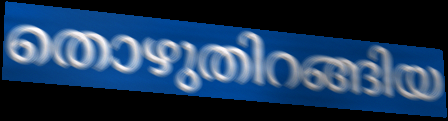
തൊഴുതിറങ്ങിയ